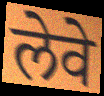
लेवे